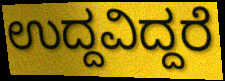
ಉದ್ದವಿದ್ದರೆ